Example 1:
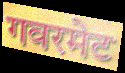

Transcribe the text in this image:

गवरमेट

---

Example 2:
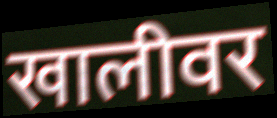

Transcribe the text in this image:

खालीवर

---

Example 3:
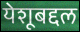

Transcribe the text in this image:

येशूबद्दल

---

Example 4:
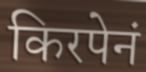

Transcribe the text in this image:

किरपेनं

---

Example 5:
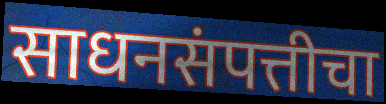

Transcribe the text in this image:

साधनसंपत्तीचा